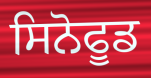
ਸਿਨੋਫੂਡ